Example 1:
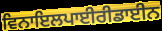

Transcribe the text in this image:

ਵਿਨਾਇਲਪਾਈਰੀਡਾਈਨ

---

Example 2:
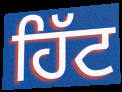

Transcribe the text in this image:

ਹਿੱਟ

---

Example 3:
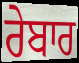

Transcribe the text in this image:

ਰੇਬਾਰ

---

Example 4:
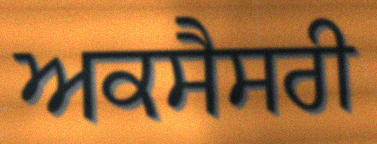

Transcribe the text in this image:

ਅਕਸੈਸਰੀ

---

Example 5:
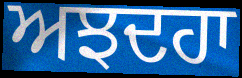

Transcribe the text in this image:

ਅਝਦਹਾ